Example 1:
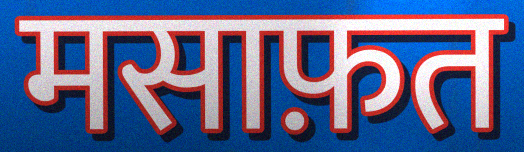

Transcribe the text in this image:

मसाफ़त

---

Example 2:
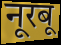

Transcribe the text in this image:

नूरबू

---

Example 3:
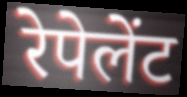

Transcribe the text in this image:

रेपेलेंट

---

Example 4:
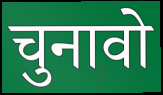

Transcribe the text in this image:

चुनावो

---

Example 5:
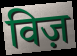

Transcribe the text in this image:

विज़